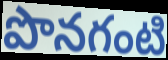
పొనగంటి